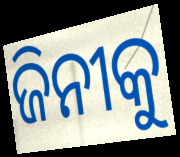
ଜିନୀକୁ